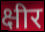
क्षीर